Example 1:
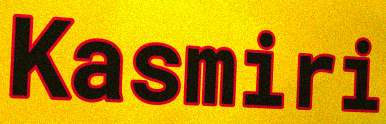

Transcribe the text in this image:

Kasmiri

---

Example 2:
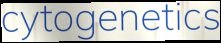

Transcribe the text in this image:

cytogenetics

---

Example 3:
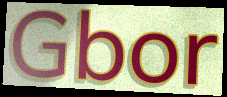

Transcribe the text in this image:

Gbor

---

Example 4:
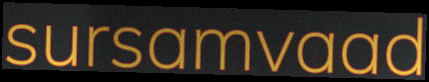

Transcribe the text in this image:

sursamvaad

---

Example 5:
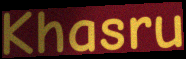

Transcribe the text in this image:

Khasru